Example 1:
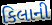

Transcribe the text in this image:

કિલાની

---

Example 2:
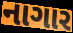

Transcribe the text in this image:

નાગાર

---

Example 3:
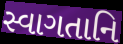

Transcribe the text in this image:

સ્વાગતાનિ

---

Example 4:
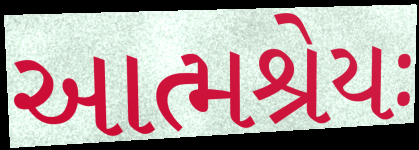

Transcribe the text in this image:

આત્મશ્રેયઃ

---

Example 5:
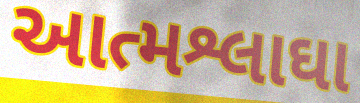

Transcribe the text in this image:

આત્મશ્લાઘા